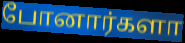
போனார்களா